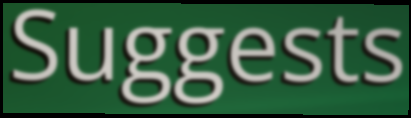
Suggests